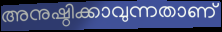
അനുഷ്ഠിക്കാവുന്നതാണ്